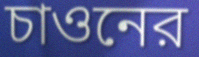
চাওনের